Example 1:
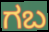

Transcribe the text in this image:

ಗಬ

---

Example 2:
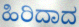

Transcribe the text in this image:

ಹಿರಿದಾದ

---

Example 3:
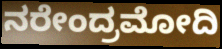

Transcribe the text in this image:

ನರೇಂದ್ರಮೋದಿ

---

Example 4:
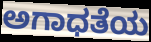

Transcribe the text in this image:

ಅಗಾಧತೆಯ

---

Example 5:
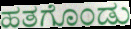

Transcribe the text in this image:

ಹತಗೊಂಡು